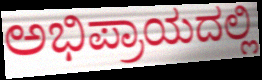
ಅಭಿಪ್ರಾಯದಲ್ಲಿ